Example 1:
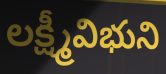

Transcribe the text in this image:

లక్ష్మీవిభుని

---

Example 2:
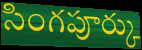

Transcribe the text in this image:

సింగపూర్కు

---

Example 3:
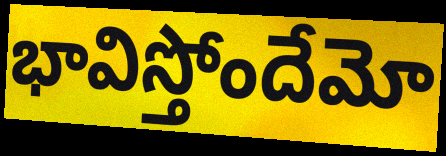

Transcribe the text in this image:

భావిస్తోందేమో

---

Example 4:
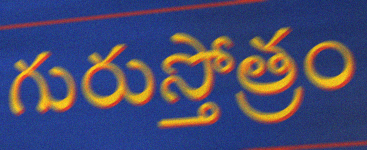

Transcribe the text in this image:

గురుస్తోత్రం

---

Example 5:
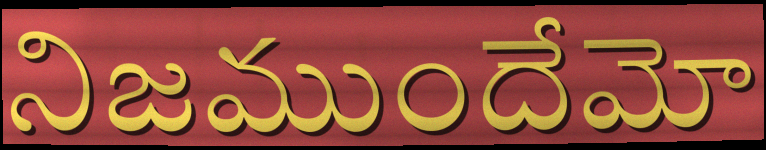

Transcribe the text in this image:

నిజముందేమో